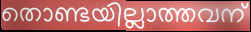
തൊണ്ടയില്ലാത്തവന്